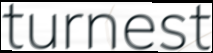
turnest